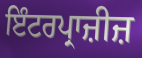
ਇੰਟਰਪ੍ਰਾਜ਼ੀਜ਼